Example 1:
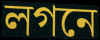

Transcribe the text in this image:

লগনে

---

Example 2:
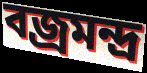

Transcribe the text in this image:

বজ্রমন্দ্র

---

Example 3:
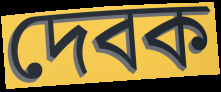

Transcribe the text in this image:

দেবক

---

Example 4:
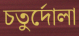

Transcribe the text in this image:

চতুর্দোলা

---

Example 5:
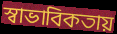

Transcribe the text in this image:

স্বাভাবিকতায়